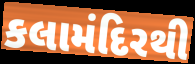
કલામંદિરથી